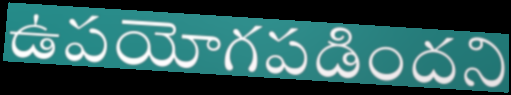
ఉపయోగపడిందని